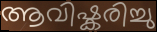
ആവിഷ്കരിച്ചു